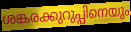
ശങ്കരക്കുറുപ്പിനെയും